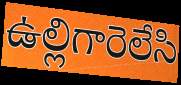
ఉల్లిగారెలేసి